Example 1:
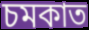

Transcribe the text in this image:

চমকাত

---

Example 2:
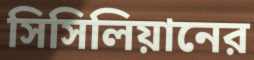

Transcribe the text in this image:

সিসিলিয়ানের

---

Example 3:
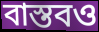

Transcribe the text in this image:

বাস্তবও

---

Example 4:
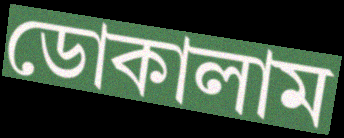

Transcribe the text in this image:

ডোকালাম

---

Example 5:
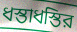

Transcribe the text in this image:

ধস্তাধস্তির